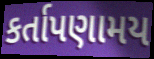
કર્તાપણામય